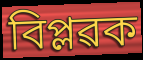
বিপ্লৱক